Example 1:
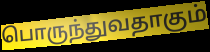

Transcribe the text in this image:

பொருந்துவதாகும்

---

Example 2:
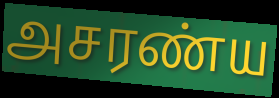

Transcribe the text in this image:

அசரண்ய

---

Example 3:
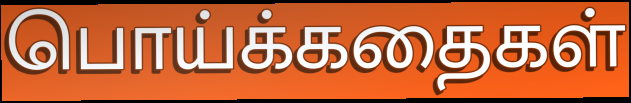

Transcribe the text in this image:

பொய்க்கதைகள்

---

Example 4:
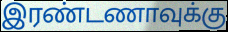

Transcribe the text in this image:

இரண்டணாவுக்கு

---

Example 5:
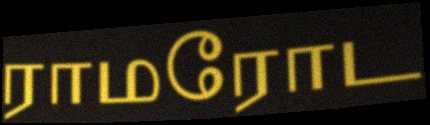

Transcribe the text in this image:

ராமரோட